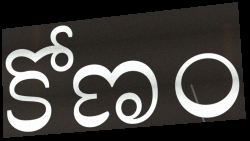
కోణం